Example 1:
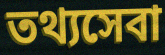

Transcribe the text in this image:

তথ্যসেবা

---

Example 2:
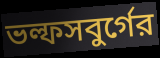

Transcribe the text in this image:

ভল্ফসবুর্গের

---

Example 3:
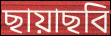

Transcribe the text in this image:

ছায়াছবি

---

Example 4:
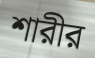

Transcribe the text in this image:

শারীর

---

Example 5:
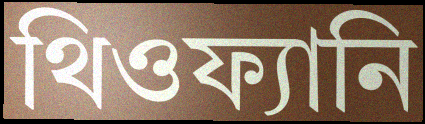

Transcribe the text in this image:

থিওফ্যানি